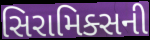
સિરામિક્સની